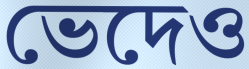
ভেদেও